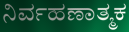
ನಿರ್ವಹಣಾತ್ಮಕ